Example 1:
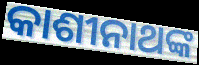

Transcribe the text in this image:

କାଶୀନାଥଙ୍କ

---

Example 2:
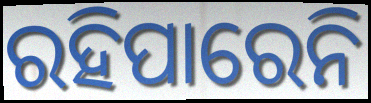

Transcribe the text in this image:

ରହିପାରେନି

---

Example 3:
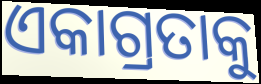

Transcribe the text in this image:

ଏକାଗ୍ରତାକୁ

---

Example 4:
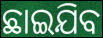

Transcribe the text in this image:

ଛାଇଯିବ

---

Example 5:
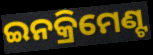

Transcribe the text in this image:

ଇନକ୍ରିମେଣ୍ଟ